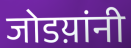
जोडय़ांनी